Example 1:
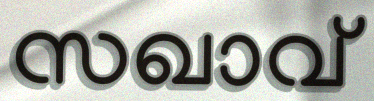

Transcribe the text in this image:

സഖാവ്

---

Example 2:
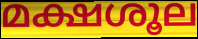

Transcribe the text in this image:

മക്ഷശൂല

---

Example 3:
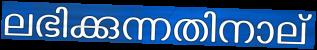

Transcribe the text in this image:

ലഭിക്കുന്നതിനാല്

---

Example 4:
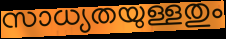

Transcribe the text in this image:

സാധ്യതയുള്ളതും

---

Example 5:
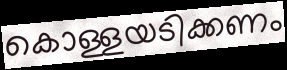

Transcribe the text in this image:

കൊള്ളയടിക്കണം